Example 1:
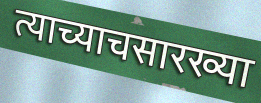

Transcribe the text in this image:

त्याच्याचसारख्या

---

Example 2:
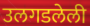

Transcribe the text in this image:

उलगडलेली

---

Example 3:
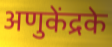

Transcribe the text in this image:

अणुकेंद्रके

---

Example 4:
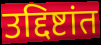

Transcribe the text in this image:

उद्दिष्टांत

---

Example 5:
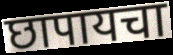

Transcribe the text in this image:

छापायचा